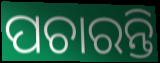
ପଚାରନ୍ତି